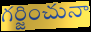
గర్జించునా